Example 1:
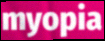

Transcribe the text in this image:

myopia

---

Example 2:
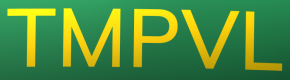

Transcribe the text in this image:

TMPVL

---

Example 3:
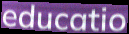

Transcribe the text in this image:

educatio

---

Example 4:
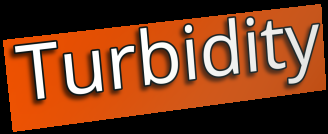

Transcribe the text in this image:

Turbidity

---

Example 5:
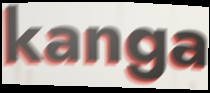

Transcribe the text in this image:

kanga